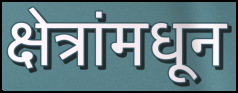
क्षेत्रांमधून